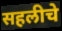
सहलीचे